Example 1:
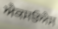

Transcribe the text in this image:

ਐਕਸਓਐਸ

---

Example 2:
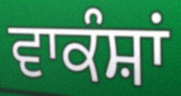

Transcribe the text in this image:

ਵਾਕੰਸ਼ਾਂ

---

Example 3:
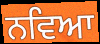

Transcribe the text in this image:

ਨਵਿਆ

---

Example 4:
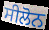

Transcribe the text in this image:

ਸੀਲੋਨ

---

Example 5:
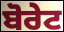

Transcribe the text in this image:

ਬੋਰੇਟ